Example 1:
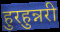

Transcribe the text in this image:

हुरहुन्नरी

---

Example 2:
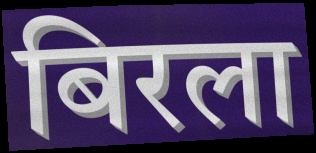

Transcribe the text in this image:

बिरला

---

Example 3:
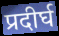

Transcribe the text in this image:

प्रदीर्घ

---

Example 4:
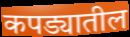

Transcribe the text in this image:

कपड्यातील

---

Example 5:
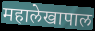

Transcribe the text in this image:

महालेखापाल